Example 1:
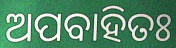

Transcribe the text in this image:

ଅପବାହିତଃ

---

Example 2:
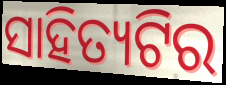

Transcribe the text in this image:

ସାହିତ୍ୟଟିର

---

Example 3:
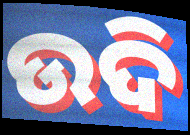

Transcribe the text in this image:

ଉଦି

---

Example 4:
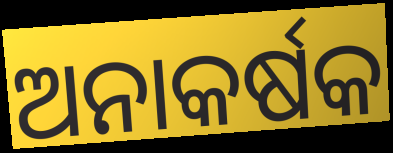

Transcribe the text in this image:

ଅନାକର୍ଷକ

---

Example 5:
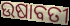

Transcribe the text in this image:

ଉଷାବତୀ